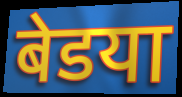
बेडया